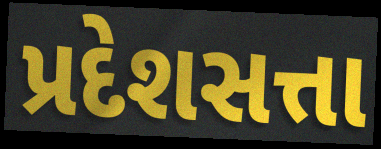
પ્રદેશસત્તા